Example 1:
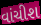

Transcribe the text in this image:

વાંચીશ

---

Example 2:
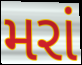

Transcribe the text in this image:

મરાં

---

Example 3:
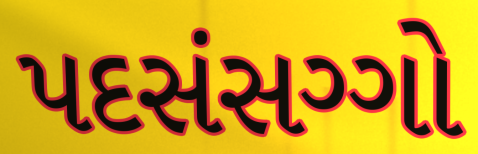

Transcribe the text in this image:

પદસંસગ્ગો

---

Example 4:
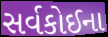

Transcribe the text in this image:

સર્વકોઈના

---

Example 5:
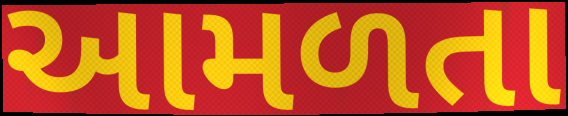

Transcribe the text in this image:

આમળતા